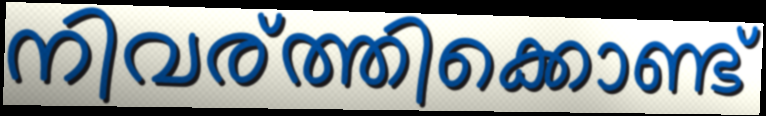
നിവര്ത്തിക്കൊണ്ട്